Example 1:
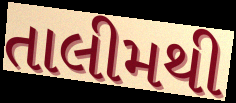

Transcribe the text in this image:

તાલીમથી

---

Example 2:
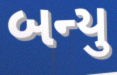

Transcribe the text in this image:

બન્યુ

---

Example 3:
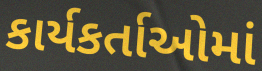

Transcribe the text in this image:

કાર્યકર્તાઓમાં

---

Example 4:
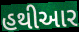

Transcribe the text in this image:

હથીઆર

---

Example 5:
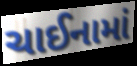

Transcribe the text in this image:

ચાઈનામાં